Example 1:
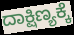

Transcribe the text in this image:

ದಾಕ್ಷಿಣ್ಯಕ್ಕೆ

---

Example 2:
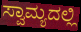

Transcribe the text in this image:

ಸ್ವಾಮ್ಯದಲ್ಲಿ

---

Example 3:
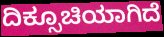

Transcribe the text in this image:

ದಿಕ್ಸೂಚಿಯಾಗಿದೆ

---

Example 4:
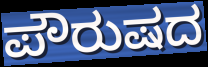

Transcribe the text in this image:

ಪೌರುಷದ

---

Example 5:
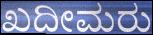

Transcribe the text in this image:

ಖದೀಮರು